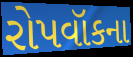
રોપવૉકના